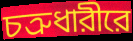
চত্রুধারীরে